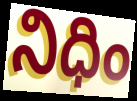
నిధిం